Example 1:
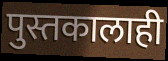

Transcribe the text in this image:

पुस्तकालाही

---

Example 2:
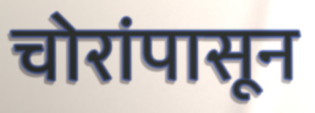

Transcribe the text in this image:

चोरांपासून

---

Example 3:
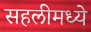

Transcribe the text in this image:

सहलीमध्ये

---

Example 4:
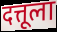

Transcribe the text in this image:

दत्तूला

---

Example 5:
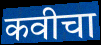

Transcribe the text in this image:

कवीचा